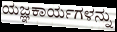
ಯಜ್ಞಕಾರ್ಯಗಳನ್ನು